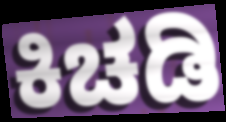
ಕಿಚಡಿ